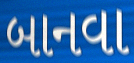
બાનવા